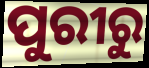
ପୁରୀରୁ